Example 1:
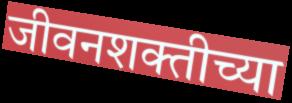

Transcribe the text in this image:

जीवनशक्तीच्या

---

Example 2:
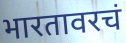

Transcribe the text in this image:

भारतावरचं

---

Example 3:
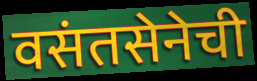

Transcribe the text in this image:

वसंतसेनेची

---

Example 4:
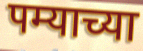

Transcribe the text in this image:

पम्याच्या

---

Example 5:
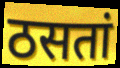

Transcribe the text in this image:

ठसतां